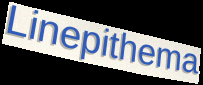
Linepithema